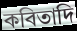
কবিতাদি